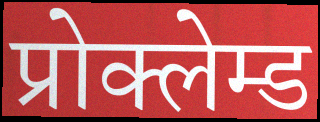
प्रोक्लेम्ड